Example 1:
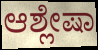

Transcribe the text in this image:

ಆಶ್ಲೇಷಾ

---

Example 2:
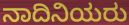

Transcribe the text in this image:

ನಾದಿನಿಯರು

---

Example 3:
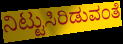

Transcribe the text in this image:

ನಿಟ್ಟುಸಿರಿಡುವಂತೆ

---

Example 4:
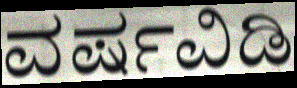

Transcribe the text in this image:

ವರ್ಷವಿಡಿ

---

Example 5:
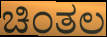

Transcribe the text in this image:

ಚಿಂತಲ